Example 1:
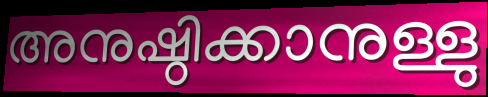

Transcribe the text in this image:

അനുഷ്ഠിക്കാനുള്ളു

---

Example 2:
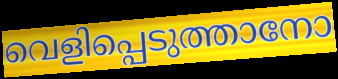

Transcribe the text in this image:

വെളിപ്പെടുത്താനോ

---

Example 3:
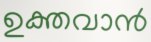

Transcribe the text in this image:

ഉക്തവാൻ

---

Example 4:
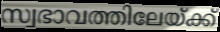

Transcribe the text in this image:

സ്വഭാവത്തിലേയ്ക്ക്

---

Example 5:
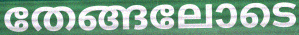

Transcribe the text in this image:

തേങ്ങലോടെ